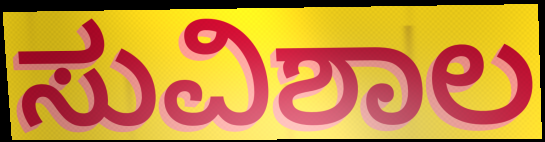
ಸುವಿಶಾಲ